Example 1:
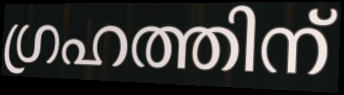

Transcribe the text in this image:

ഗ്രഹത്തിന്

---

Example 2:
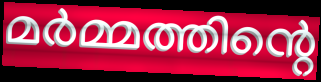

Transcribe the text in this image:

മർമ്മത്തിന്റെ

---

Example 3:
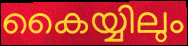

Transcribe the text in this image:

കൈയ്യിലും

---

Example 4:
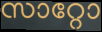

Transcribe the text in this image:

സാറ്റോ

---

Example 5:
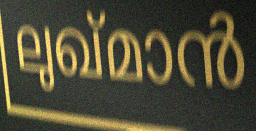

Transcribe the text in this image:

ലുഖ്മാൻ